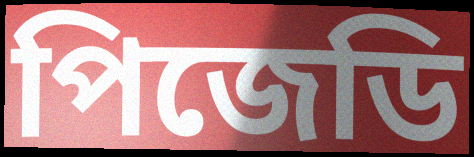
পিজেডি